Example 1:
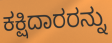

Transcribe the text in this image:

ಕಕ್ಷಿದಾರರನ್ನು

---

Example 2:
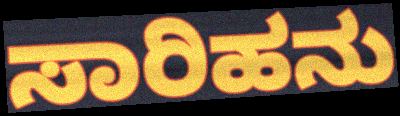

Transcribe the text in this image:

ಸಾರಿಹನು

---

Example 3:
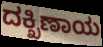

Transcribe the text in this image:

ದಕ್ಖಿಣಾಯ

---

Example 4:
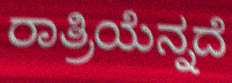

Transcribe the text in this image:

ರಾತ್ರಿಯೆನ್ನದೆ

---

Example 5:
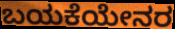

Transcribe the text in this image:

ಬಯಕೆಯೇನರ